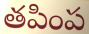
తపింప